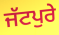
ਜੱਟਪੁਰੇ